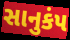
સાનુકંપ